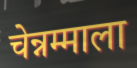
चेन्नम्माला